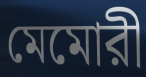
মেমোরী